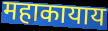
महाकायाय